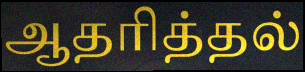
ஆதரித்தல்